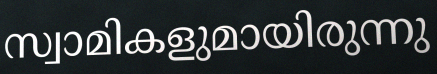
സ്വാമികളുമായിരുന്നു